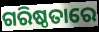
ଗରିଷ୍ଠତାରେ